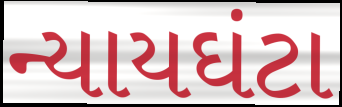
ન્યાયઘંટા